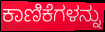
ಕಾಣಿಕೆಗಳನ್ನು